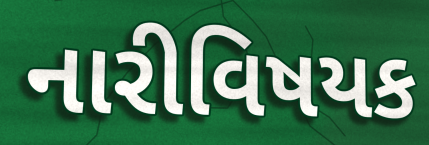
નારીવિષયક